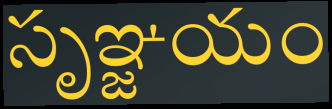
సృఞ్జయం